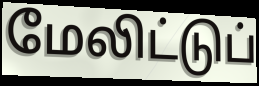
மேலிட்டுப்